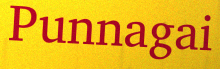
Punnagai